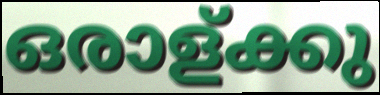
ഒരാള്ക്കു